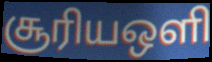
சூரியஒளி